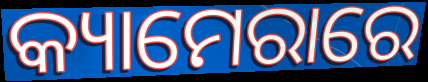
କ୍ୟାମେରାରେ